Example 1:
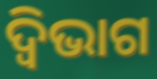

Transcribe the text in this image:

ଦ୍ୱିଭାଗ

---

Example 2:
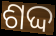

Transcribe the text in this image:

ଶଦ୍ଦ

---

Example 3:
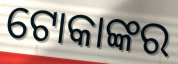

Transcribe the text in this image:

ଟୋକାଙ୍କର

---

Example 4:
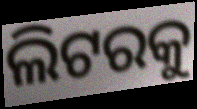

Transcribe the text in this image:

ଲିଟରକୁ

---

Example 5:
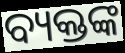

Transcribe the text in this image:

ବ୍ୟକ୍ତଙ୍କ